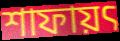
শাফায়ৎ